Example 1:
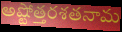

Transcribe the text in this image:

అష్టోత్తరశతనామ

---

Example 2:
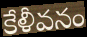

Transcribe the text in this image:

కేళీవనం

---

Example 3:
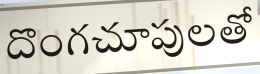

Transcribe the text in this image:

దొంగచూపులతో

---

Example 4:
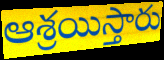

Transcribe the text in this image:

ఆశ్రయిస్తారు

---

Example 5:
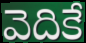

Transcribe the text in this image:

వెదికే